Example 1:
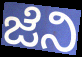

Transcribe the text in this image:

ಜೆನಿ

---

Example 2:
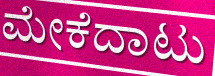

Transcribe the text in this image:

ಮೇಕೆದಾಟು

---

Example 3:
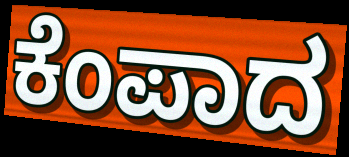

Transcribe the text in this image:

ಕೆಂಪಾದ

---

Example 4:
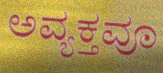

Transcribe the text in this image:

ಅವ್ಯಕ್ತವೂ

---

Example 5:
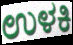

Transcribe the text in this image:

ಉಳಕಿ